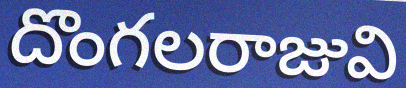
దొంగలరాజువి